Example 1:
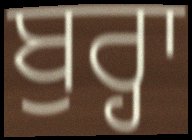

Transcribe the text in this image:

ਬੁਰ੍ਹਾ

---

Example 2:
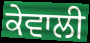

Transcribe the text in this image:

ਕੇਵਾਲੀ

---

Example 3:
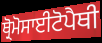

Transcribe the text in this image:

ਥ੍ਰੋਮੋਸਾਈਟੋਪੈਥੀ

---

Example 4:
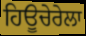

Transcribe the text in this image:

ਹਿਊਚੇਰੇਲਾ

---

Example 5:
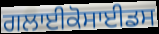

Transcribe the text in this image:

ਗਲਾਈਕੋਸਾਈਡਸ